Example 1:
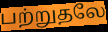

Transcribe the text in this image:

பற்றுதலே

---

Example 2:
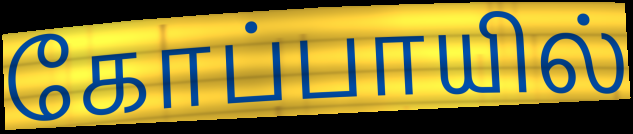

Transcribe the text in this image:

கோப்பாயில்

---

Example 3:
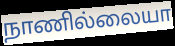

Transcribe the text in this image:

நாணில்லையா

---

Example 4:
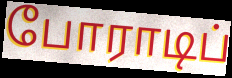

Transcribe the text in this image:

போராடிப்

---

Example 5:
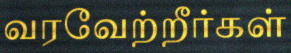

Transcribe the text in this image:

வரவேற்றீர்கள்